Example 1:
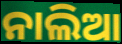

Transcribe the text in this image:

ନାଲିଆ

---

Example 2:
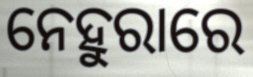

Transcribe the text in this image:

ନେହୁରାରେ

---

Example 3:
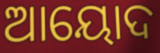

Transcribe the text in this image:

ଆୟୋଦ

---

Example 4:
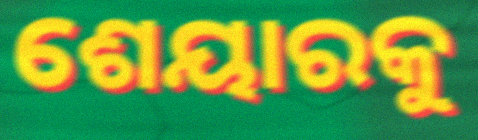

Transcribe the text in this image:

ଶେୟାରକୁ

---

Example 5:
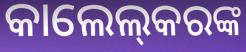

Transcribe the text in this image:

କାଲେଲ୍‌କରଙ୍କ